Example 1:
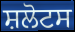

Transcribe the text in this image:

ਸ਼ਲੋਟਸ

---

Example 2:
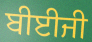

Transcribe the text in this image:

ਬੀਈਜੀ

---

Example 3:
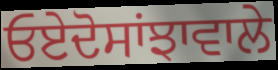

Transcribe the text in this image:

ਓਏਦੋਸਾਂਝਾਵਾਲੇ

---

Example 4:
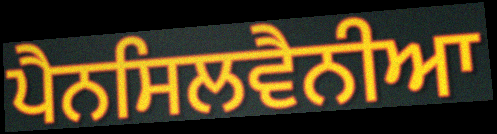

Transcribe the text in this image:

ਪੈਨਸਿਲਵੈਨੀਆ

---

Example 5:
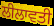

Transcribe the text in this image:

ਲੀਲਾਵਤੀ